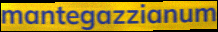
mantegazzianum